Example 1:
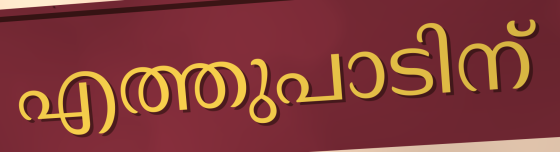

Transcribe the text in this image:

എത്തുപാടിന്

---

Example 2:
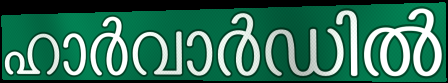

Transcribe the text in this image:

ഹാർവാർഡിൽ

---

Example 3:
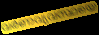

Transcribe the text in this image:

വർണവ്യവസ്ഥയെ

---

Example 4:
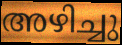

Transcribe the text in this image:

അഴിച്ചു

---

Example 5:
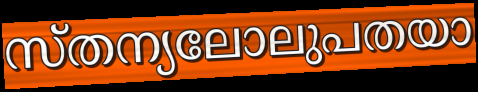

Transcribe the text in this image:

സ്തന്യലോലുപതയാ